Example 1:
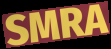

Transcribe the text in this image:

SMRA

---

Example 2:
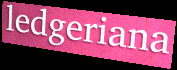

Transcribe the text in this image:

ledgeriana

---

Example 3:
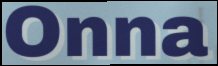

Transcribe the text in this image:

Onna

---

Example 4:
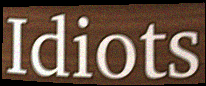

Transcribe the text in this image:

Idiots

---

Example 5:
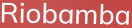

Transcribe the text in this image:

Riobamba